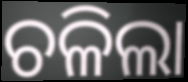
ଚଳିଲା